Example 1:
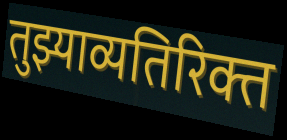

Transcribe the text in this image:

तुझ्याव्यतिरिक्त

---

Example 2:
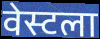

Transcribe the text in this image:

वेस्टला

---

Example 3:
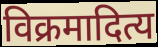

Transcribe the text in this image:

विक्रमादित्य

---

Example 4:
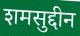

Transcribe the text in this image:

शमसुद्दीन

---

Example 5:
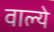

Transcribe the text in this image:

वाल्ये